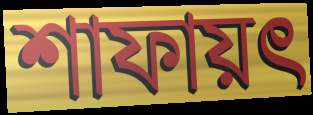
শাফায়ৎ